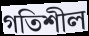
গতিশীল